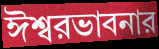
ঈশ্বরভাবনার